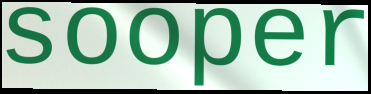
sooper